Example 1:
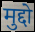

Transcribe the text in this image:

मुद्दो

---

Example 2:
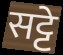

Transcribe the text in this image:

सट्टे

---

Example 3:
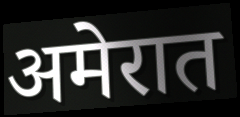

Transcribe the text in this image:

अमेरात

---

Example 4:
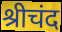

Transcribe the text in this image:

श्रीचंद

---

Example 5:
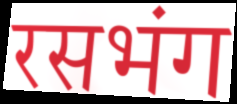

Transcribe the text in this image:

रसभंग